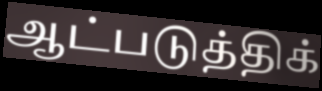
ஆட்படுத்திக்